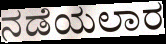
ನಡೆಯಲಾರ